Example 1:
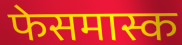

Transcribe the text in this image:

फेसमास्क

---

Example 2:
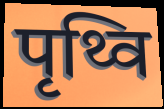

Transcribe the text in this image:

पृथ्वि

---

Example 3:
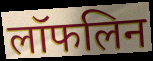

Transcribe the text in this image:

लॉफलिन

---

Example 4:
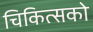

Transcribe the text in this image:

चिकित्सको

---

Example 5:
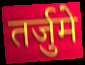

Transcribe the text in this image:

तर्जुमे